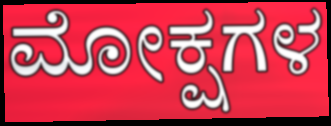
ಮೋಕ್ಷಗಳ